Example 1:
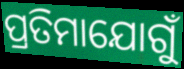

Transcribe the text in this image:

ପ୍ରତିମାଯୋଗୁଁ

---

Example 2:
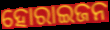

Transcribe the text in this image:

ହୋରାଇଜନ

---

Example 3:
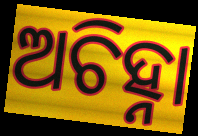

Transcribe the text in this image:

ଅଚିହ୍ନା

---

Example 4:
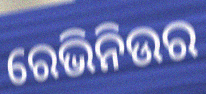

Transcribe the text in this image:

ରେଭିନିଉର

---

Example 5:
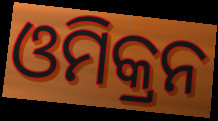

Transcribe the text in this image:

ଓମିକ୍ରନ